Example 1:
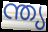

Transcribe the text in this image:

ന്ത്യ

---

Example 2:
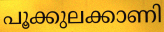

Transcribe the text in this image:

പൂക്കുലക്കാണി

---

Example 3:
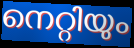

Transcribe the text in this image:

നെറ്റിയും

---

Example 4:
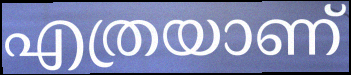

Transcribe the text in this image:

എത്രയാണ്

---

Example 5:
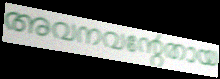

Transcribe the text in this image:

അവനവന്റേതായ